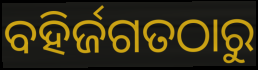
ବହିର୍ଜଗତଠାରୁ